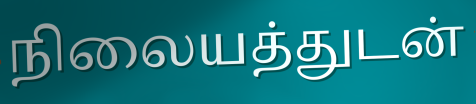
நிலையத்துடன்